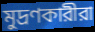
মুদ্রণকারীরা